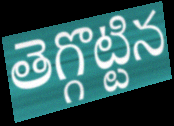
తెగ్గొట్టిన